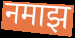
नमाझ